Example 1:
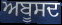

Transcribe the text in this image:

ਅਬੂਸਦ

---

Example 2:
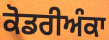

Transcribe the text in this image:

ਕੋਡਰੀਅੰਕਾ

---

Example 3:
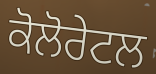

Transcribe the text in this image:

ਕੋਲੋਰੇਟਲ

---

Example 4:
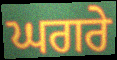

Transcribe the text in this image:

ਘਗਰੇ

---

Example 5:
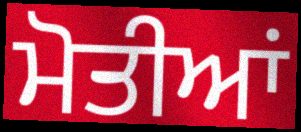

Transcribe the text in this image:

ਮੋਤੀਆਂ